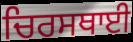
ਚਿਰਸਥਾਈ